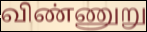
விண்ணுறு